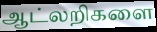
ஆட்லறிகளை